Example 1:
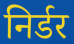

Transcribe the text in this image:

निर्डर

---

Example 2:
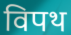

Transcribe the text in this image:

विपथ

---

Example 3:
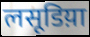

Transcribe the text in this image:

लसूडिय़ा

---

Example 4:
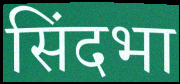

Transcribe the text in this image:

सिंदभा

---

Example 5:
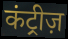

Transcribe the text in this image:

कंट्रीज़